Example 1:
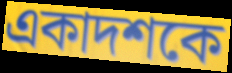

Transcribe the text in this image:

একাদশকে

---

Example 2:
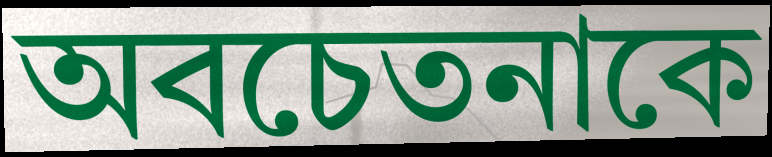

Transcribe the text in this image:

অবচেতনাকে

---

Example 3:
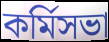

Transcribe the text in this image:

কর্মিসভা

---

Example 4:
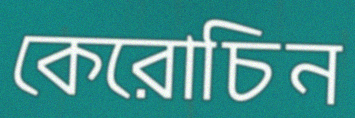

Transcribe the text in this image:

কেরোচিন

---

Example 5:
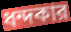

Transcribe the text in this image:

ধন্দকার